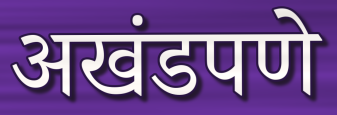
अखंडपणे